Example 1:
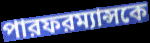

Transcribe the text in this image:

পারফরম্যান্সকে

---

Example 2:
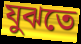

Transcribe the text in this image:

যুঝতে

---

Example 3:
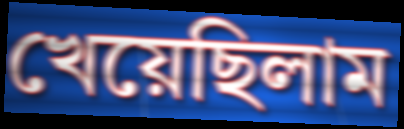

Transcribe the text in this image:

খেয়েছিলাম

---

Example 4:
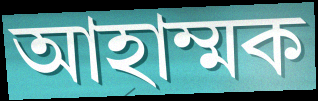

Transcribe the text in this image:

আহাম্মক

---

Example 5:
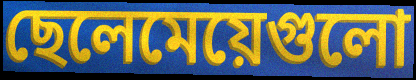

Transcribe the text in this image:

ছেলেমেয়েগুলো